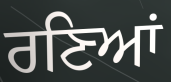
ਰਣਿਆਂ